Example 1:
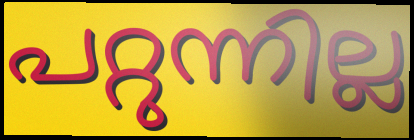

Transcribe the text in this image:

പറ്റുന്നില്ല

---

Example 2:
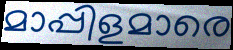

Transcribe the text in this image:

മാപ്പിളമാരെ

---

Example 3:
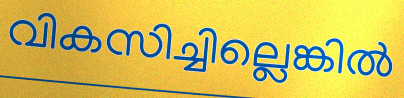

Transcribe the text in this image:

വികസിച്ചില്ലെങ്കിൽ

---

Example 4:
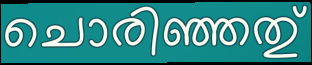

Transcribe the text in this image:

ചൊരിഞ്ഞതു്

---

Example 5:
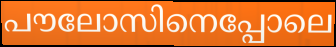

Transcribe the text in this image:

പൗലോസിനെപ്പോലെ